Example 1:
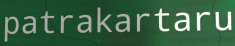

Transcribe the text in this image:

patrakartaru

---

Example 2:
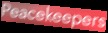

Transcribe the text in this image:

Peacekeepers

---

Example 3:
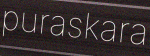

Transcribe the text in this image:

puraskara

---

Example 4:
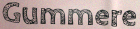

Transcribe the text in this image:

Gummere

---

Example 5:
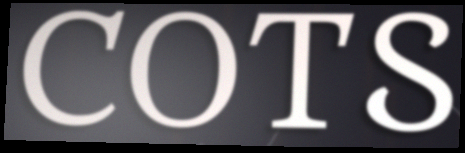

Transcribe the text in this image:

COTS